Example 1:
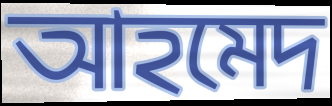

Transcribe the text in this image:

আহমেদ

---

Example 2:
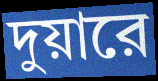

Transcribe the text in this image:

দুয়ারে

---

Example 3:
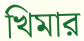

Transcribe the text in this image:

খিমার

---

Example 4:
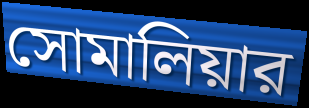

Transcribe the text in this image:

সোমালিয়ার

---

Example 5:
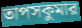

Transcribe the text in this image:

তাপসকুমার